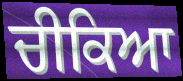
ਚੀਕਿਆ